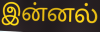
இன்னல்